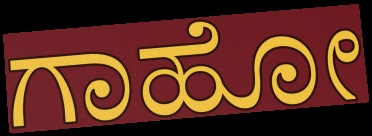
ಗಾಹೋ